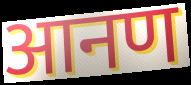
आनण